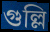
গুল্লি